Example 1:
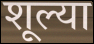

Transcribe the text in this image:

शूल्या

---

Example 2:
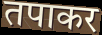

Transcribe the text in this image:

तपाकर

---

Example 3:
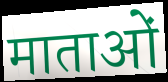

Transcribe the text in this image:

माताओं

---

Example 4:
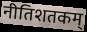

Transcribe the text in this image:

नीतिशतकम्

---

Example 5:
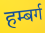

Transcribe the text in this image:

हम्बर्ग